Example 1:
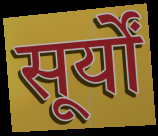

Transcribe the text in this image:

सूर्यों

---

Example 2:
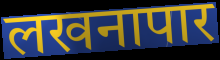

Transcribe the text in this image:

लखनापार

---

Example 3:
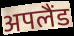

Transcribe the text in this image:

अपलैंड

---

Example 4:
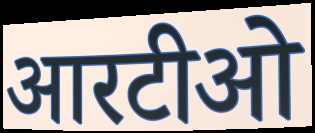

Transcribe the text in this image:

आरटीओ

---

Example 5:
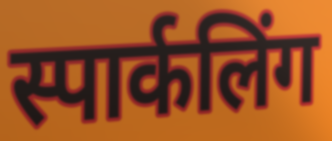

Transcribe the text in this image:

स्पार्कलिंग